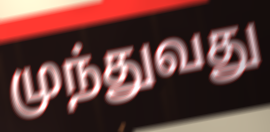
முந்துவது